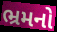
ભ્રમનો